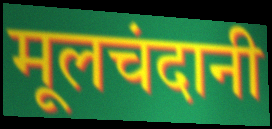
मूलचंदानी